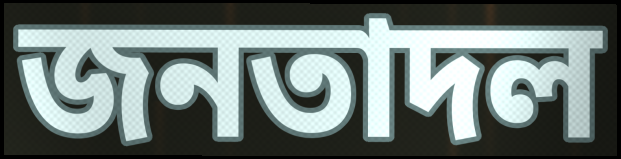
জনতাদল